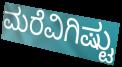
ಮರೆವಿಗಿಷ್ಟು